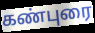
கண்புரை